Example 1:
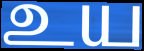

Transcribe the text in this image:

உய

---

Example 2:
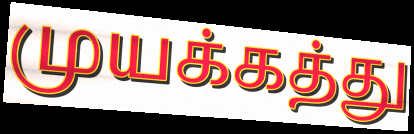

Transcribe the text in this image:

முயக்கத்து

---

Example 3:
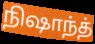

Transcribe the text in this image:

நிஷாந்த்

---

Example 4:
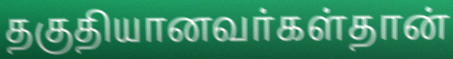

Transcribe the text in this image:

தகுதியானவர்கள்தான்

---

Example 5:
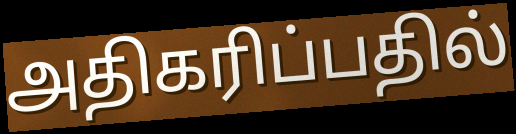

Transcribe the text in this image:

அதிகரிப்பதில்